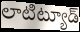
లాటిట్యూడ్